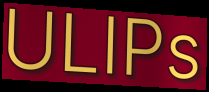
ULIPs